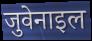
जुवेनाइल